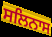
ਸਲਿਨਾਸ